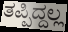
ತಪ್ಪಿದ್ದಲ್ಲ